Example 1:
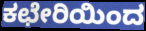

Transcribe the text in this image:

ಕಛೇರಿಯಿಂದ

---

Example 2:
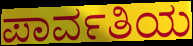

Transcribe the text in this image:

ಪಾರ್ವತಿಯ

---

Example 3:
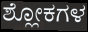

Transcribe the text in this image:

ಶ್ಲೋಕಗಳ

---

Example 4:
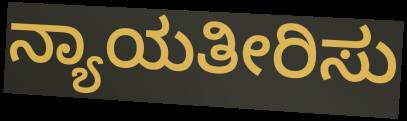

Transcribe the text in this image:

ನ್ಯಾಯತೀರಿಸು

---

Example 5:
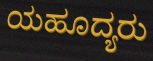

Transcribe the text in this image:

ಯಹೂದ್ಯರು